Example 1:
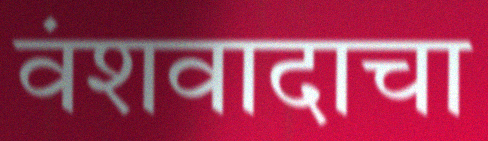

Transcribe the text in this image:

वंशवादाचा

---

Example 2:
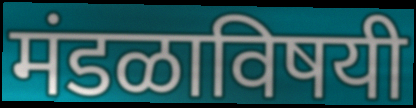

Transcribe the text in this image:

मंडळाविषयी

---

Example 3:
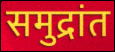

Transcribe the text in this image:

समुद्रांत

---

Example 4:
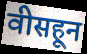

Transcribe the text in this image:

वीसहून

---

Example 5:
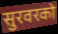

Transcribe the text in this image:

सुरवरको